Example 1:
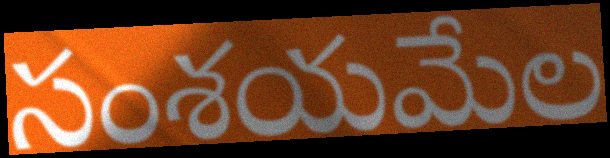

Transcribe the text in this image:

సంశయమేల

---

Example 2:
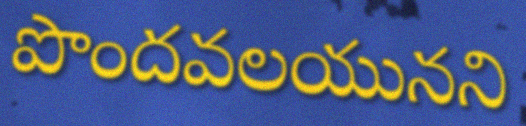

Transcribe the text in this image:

పొందవలయునని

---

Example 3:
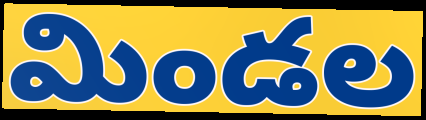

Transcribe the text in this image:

మిండల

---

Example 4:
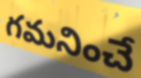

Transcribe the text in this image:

గమనించే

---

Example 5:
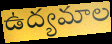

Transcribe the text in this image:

ఉద్యమాల